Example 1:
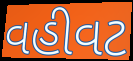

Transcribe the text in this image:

વહીવટ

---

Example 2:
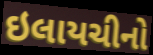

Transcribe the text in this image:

ઇલાયચીનો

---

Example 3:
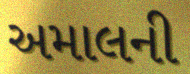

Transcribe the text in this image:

અમાલની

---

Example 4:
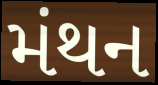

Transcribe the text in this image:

મંથન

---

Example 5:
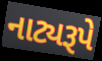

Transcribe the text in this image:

નાટ્યરૂપે